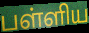
பள்ளிய